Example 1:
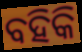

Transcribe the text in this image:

ବହିକି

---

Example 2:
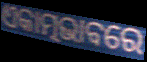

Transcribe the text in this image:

ଏକାତ୍ମଭାବରେ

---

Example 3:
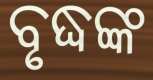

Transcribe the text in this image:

ବୃଦ୍ଧଙ୍କ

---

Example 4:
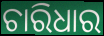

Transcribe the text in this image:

ଚାରିଧାର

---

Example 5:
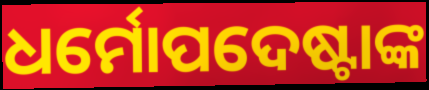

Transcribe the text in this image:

ଧର୍ମୋପଦେଷ୍ଟାଙ୍କ